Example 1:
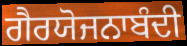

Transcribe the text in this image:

ਗੈਰਯੋਜਨਾਬੰਦੀ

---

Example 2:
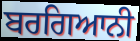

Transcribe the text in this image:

ਬਰਗਿਆਨੀ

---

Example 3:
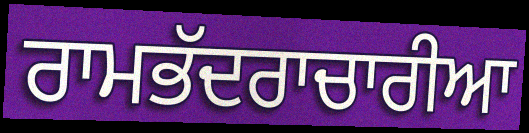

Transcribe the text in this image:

ਰਾਮਭੱਦਰਾਚਾਰੀਆ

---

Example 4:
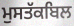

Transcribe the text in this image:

ਮੁਸਤੱਕਬਿਲ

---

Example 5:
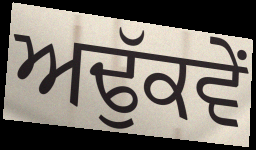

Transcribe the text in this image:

ਅਢੁੱਕਵੇਂ